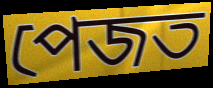
পেজত